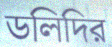
ডলিদির